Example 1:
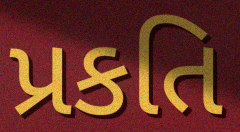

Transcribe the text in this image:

પ્રકતિ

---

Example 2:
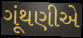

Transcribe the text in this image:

ગૂંથણીએ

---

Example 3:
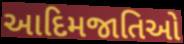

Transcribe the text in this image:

આદિમજાતિઓ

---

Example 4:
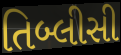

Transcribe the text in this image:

તિબ્લીસી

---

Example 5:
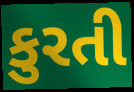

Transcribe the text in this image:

કુરતી